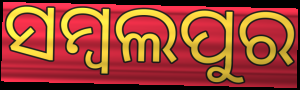
ସମ୍ବଲପୁର